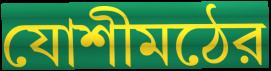
যোশীমঠের